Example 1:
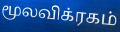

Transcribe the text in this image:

மூலவிக்ரகம்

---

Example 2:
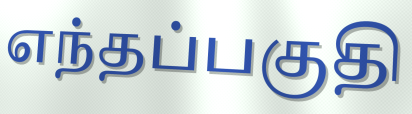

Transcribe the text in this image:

எந்தப்பகுதி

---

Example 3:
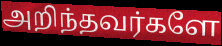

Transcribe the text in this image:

அறிந்தவர்களே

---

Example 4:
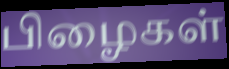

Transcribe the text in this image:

பிழைகள்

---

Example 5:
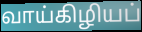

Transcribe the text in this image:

வாய்கிழியப்